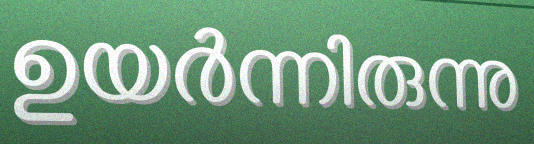
ഉയർന്നിരുന്നു